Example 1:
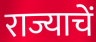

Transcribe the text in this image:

राज्याचें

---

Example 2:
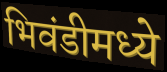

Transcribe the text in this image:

भिवंडीमध्ये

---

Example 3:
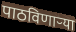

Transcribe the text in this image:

पाठविणाऱ्या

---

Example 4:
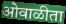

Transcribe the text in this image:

ओवाळीता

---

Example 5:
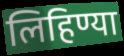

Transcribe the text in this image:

लिहिण्या